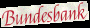
Bundesbank